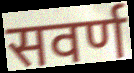
सवर्ण